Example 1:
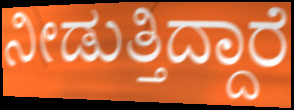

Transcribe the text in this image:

ನೀಡುತ್ತಿದ್ದಾರೆ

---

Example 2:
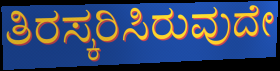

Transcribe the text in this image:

ತಿರಸ್ಕರಿಸಿರುವುದೇ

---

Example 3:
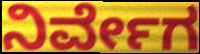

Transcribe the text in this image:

ನಿರ್ವೇಗ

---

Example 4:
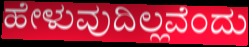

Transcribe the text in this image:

ಹೇಳುವುದಿಲ್ಲವೆಂದು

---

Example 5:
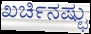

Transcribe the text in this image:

ಖರ್ಚಿನಷ್ಟು